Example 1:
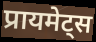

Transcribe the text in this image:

प्रायमेट्स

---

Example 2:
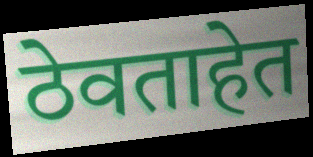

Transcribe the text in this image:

ठेवताहेत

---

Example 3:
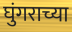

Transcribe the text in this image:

घुंगराच्या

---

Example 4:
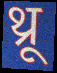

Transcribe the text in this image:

थ्रू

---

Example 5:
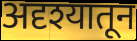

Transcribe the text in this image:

अदृश्यातून